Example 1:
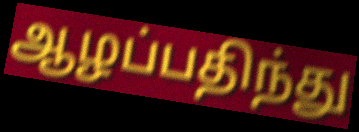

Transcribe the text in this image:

ஆழப்பதிந்து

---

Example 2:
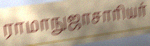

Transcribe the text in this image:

ராமாநுஜாசாரியர்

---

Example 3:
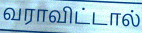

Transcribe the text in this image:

வராவிட்டால்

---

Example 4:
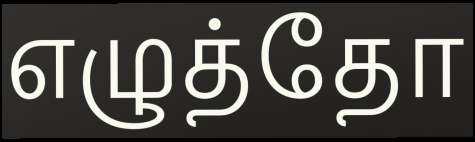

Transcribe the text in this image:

எழுத்தோ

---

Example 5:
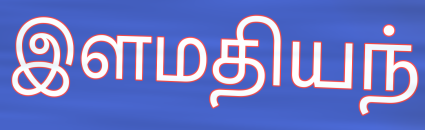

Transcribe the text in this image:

இளமதியந்